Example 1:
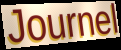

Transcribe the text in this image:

Journel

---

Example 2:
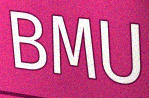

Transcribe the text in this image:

BMU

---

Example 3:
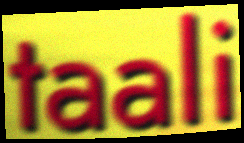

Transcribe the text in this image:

taali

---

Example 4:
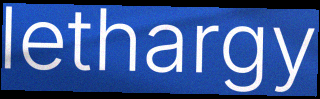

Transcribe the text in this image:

lethargy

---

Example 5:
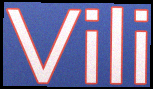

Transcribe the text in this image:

Vili